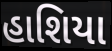
હાશિયા